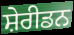
ਸ਼ੇਰੀਡਨ